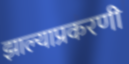
झाल्याप्रकरणी